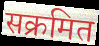
सक्रमित